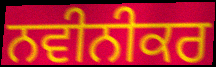
ਨਵੀਨੀਕਰ